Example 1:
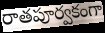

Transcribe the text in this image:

రాతపూర్వకంగా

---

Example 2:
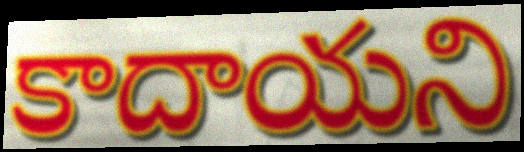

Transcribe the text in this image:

కాదాయని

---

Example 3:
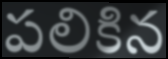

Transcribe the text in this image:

పలికిన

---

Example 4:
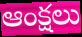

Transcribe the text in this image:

ఆంక్షలు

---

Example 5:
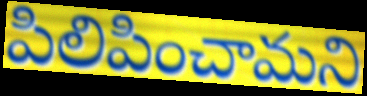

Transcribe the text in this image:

పిలిపించామని